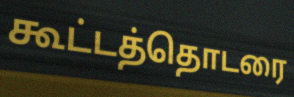
கூட்டத்தொடரை